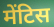
मेंटिस